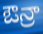
ఔన్రా